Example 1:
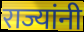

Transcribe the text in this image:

राज्यांनी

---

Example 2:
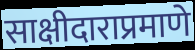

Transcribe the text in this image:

साक्षीदाराप्रमाणे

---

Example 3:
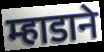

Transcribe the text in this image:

म्हाडाने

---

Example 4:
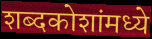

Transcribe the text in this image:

शब्दकोशांमध्ये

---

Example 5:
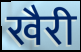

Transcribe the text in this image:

खैरी